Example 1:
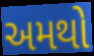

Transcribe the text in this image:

અમથો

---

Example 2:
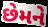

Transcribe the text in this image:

છેમને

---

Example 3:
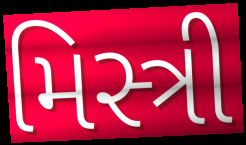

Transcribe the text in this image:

મિસ્ત્રી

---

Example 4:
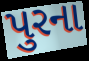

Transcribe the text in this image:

પુરના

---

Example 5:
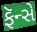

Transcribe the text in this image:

ફૅન્સે